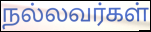
நல்லவர்கள்